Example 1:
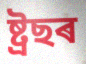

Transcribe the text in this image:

ষ্ট্ৰছৰ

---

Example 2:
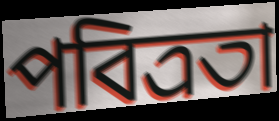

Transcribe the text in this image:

পবিত্ৰতা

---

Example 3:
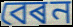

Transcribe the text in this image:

বেৰন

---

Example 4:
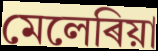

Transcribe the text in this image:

মেলেৰিয়া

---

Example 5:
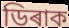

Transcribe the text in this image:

ডিৰাক